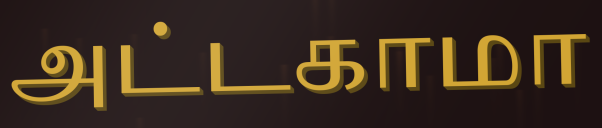
அட்டகாமா